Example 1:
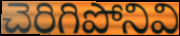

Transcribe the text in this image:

చెరిగిపోనివి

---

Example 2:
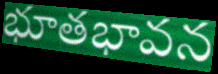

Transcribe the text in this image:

భూతభావన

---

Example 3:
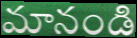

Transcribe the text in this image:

మానండి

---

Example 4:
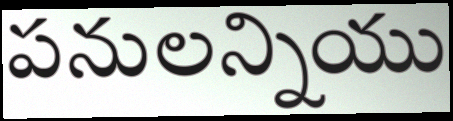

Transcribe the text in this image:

పనులన్నియు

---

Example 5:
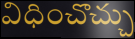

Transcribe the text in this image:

విధించొచ్చు